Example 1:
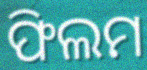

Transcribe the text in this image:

ଫିଲମ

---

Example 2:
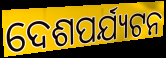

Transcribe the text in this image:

ଦେଶପର୍ଯ୍ୟଟନ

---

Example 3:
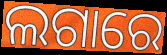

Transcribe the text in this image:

ଲଗାରେ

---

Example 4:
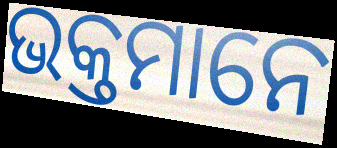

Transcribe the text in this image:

ଭକ୍ତମାନେ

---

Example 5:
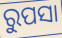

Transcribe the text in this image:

ରୁପସା